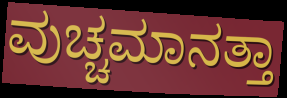
ವುಚ್ಚಮಾನತ್ತಾ